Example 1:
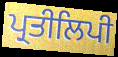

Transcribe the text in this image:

ਪ੍ਰਤੀਲਿਪੀ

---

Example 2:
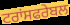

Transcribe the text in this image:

ਟਰਾਂਸਫਰੇਬਲ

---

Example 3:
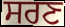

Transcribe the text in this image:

ਸਰਣ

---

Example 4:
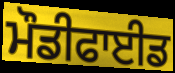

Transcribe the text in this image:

ਮੌਡੀਫਾਈਡ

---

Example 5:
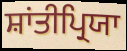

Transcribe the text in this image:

ਸ਼ਾਂਤੀਪ੍ਰਿਯਾ